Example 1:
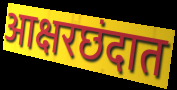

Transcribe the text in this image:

आक्षरछंदात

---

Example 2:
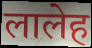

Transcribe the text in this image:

लालेह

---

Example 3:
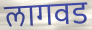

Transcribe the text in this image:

लागवड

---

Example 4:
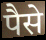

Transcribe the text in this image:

पैसे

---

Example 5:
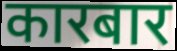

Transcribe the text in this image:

कारबार